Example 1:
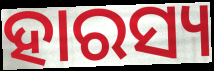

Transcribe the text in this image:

ହାରସ୍ୟ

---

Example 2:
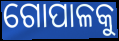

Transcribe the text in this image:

ଗୋପାଳକୁ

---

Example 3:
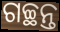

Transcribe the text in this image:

ଗଚ୍ଛନ୍ତ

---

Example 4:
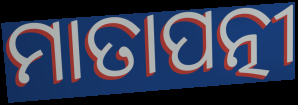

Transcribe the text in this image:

ମାତାପତ୍ନୀ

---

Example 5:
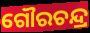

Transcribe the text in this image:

ଗୌରଚନ୍ଦ୍ର